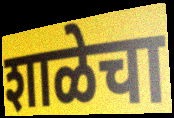
शाळेचा